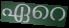
ഏറെ